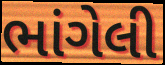
ભાંગેલી